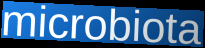
microbiota